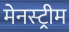
मेनस्‍ट्रीम